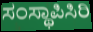
ಸಂಸ್ಥಾಪಿಸಿರಿ